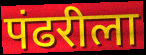
पंढरीला